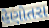
હેણોતરા